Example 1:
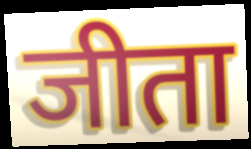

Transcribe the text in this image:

जीता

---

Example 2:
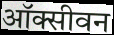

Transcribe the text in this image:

ऑक्सीवन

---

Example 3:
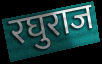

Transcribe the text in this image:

रघुराज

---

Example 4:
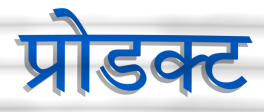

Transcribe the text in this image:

प्रोडक्ट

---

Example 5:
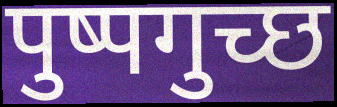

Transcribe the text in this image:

पुष्पगुच्छ